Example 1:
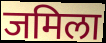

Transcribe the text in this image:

जमिला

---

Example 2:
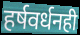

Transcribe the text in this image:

हर्षवर्धनही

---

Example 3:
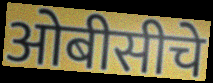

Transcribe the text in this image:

ओबीसीचे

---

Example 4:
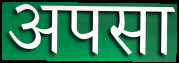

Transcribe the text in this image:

अपसा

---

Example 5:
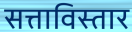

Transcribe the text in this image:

सत्ताविस्तार